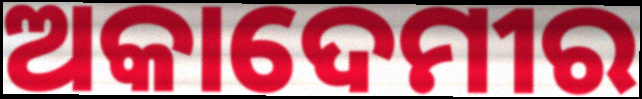
ଅକାଦେମୀର